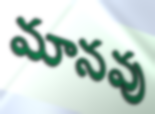
మానవు